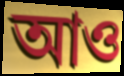
আও